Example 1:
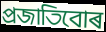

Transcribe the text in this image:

প্ৰজাতিবোৰ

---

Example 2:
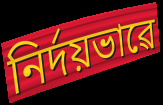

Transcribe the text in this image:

নিৰ্দয়ভাৱে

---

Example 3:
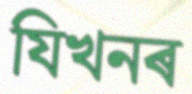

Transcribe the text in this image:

যিখনৰ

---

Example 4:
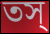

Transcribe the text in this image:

তস্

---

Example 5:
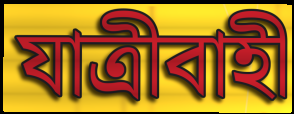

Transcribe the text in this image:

যাত্ৰীবাহী